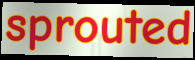
sprouted